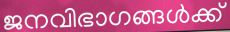
ജനവിഭാഗങ്ങൾക്ക്